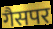
गैसपर